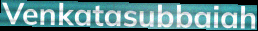
Venkatasubbaiah